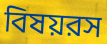
বিষয়রস